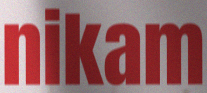
nikam